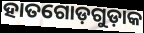
ହାତଗୋଡ଼ଗୁଡ଼ାକ